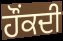
ਹੌਂਕਦੀ